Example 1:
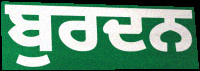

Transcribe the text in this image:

ਬੁਰਦਨ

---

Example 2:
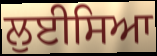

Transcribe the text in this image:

ਲੁਈਸਿਆ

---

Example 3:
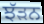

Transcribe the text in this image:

ਝੱੜਨ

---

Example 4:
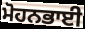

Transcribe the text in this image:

ਮੋਹਨਭਾਈ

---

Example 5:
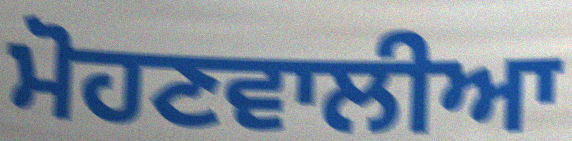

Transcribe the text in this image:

ਮੋਹਣਵਾਲੀਆ